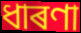
ধাৰণা